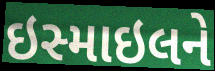
ઇસ્માઇલને